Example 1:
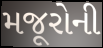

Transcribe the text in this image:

મજૂરોની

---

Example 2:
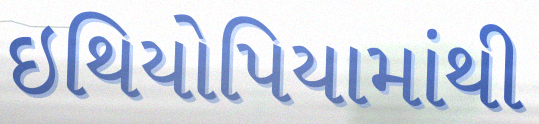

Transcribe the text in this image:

ઇથિયોપિયામાંથી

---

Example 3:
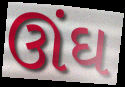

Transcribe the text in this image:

ઊંઘ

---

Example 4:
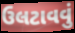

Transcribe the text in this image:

ઉલટાવવું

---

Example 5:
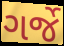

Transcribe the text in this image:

ગર્જે